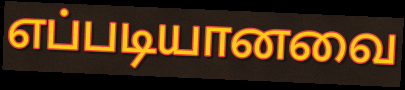
எப்படியானவை